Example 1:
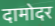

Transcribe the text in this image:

दामोदर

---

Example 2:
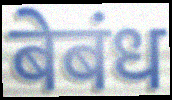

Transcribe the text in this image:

बेबंध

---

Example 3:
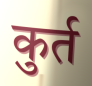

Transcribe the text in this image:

कुर्त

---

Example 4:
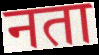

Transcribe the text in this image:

नता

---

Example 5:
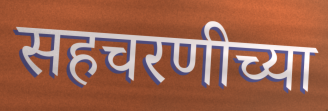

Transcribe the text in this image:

सहचरणीच्या